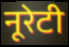
नूरेटी